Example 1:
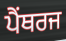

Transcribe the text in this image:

ਪੈਂਥਰਜ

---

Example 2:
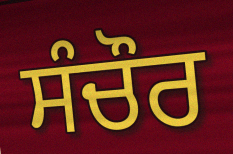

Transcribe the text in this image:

ਸੰਚੌਰ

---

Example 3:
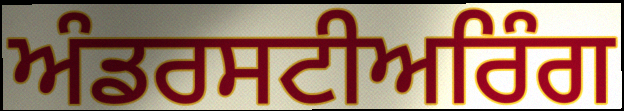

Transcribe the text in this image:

ਅੰਡਰਸਟੀਅਰਿੰਗ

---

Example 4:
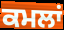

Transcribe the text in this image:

ਕਮਲਾਂ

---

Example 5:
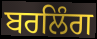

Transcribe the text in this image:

ਬਰਲਿੰਗ